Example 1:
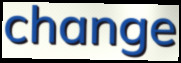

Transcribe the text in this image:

change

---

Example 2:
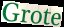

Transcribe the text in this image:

Grote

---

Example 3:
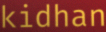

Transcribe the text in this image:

kidhan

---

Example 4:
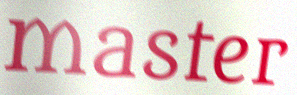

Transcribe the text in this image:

master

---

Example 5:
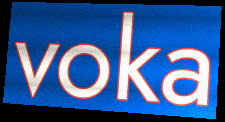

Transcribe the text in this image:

voka